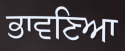
ਭਾਵਣਿਆ